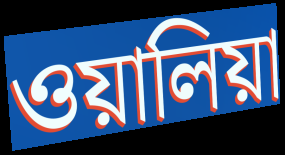
ওয়ালিয়া